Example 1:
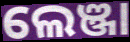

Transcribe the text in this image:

ଲେଞ୍ଜା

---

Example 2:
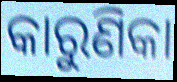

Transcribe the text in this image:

କାରୁଣିକା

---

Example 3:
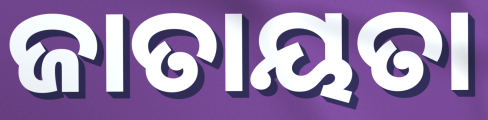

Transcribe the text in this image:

ଜାତାୟତା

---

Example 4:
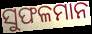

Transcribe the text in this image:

ସୁଫଳମାନ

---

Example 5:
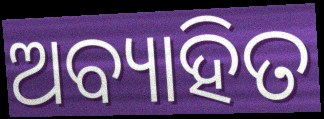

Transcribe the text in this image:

ଅବ୍ୟାହିତ